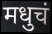
मधुचं